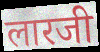
लारजी